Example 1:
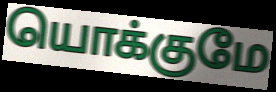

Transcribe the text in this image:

யொக்குமே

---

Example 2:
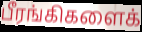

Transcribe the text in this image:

பீரங்கிகளைக்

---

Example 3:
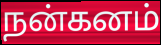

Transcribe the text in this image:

நன்கனம்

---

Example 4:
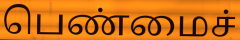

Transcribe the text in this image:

பெண்மைச்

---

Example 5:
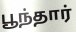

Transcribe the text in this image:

பூந்தார்